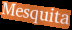
Mesquita